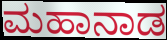
ಮಹಾನಾಡ